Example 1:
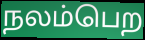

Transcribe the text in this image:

நலம்பெற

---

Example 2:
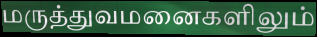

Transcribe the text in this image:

மருத்துவமனைகளிலும்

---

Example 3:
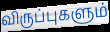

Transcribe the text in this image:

விருப்புகளும்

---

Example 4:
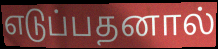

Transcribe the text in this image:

எடுப்பதனால்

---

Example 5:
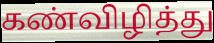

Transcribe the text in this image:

கண்விழித்து